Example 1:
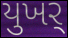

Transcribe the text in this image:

યુખર્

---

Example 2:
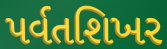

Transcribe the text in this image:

પર્વતશિખર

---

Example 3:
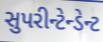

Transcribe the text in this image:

સુપરીન્ટેન્ડેન્ટ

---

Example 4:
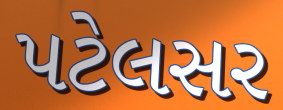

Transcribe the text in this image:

પટેલસર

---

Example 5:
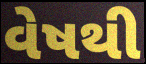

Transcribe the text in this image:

વેષથી